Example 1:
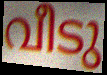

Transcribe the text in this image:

വീടു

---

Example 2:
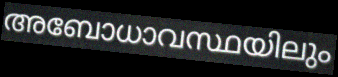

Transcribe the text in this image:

അബോധാവസ്ഥയിലും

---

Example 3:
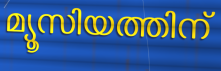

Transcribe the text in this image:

മ്യൂസിയത്തിന്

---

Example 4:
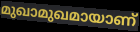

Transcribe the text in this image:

മുഖാമുഖമായാണ്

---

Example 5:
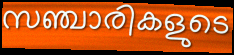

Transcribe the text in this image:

സഞ്ചാരികളുടെ